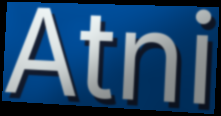
Atni